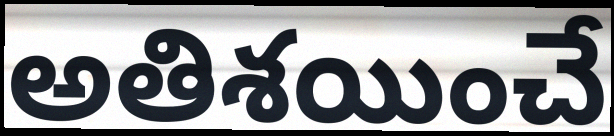
అతిశయించే